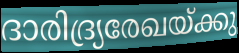
ദാരിദ്ര്യരേഖയ്ക്കു